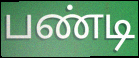
பண்டி